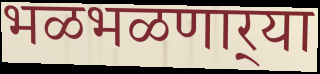
भळभळणार्या